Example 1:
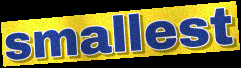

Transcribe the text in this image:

smallest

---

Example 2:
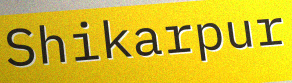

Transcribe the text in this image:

Shikarpur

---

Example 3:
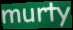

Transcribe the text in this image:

murty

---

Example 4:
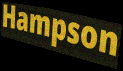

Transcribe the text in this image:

Hampson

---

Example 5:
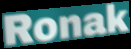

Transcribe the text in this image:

Ronak